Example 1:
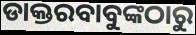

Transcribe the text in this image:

ଡାକ୍ତରବାବୁଙ୍କଠାରୁ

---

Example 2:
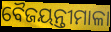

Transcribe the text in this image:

ବୈଜୟନ୍ତୀମାଳା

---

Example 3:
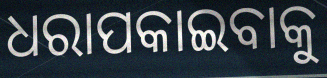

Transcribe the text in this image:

ଧରାପକାଇବାକୁ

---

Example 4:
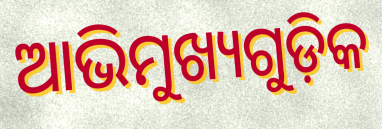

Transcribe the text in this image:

ଆଭିମୁଖ୍ୟଗୁଡ଼ିକ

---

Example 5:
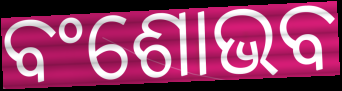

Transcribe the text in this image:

ବଂଶୋଭବ